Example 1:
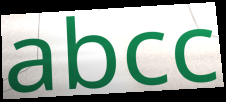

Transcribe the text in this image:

abcc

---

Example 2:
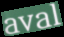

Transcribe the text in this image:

aval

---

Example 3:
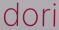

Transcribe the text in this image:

dori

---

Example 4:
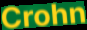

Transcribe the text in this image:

Crohn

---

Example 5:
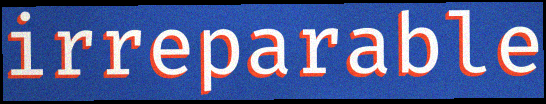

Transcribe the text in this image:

irreparable